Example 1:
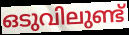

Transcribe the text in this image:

ഒടുവിലുണ്ട്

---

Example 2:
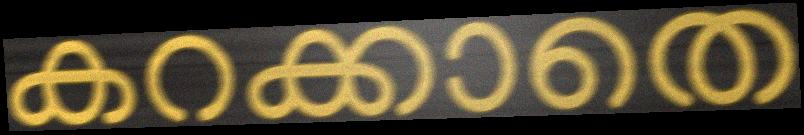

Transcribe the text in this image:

കറക്കാതെ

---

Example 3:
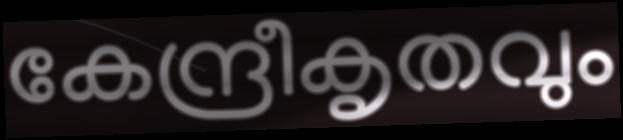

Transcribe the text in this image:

കേന്ദ്രീകൃതവും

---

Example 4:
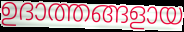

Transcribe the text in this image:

ഉദാത്തങ്ങളായ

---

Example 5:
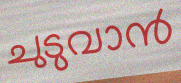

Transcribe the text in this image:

ചുടുവാൻ